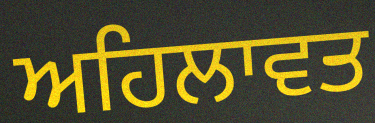
ਅਹਿਲਾਵਤ